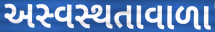
અસ્વસ્થતાવાળા